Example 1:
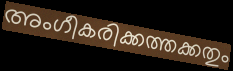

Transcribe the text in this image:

അംഗീകരിക്കത്തക്കതും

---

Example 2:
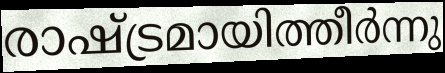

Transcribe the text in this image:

രാഷ്ട്രമായിത്തീർന്നു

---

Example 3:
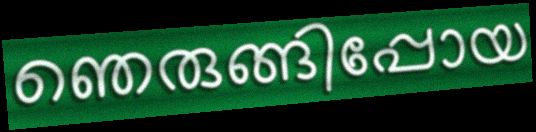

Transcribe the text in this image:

ഞെരുങ്ങിപ്പോയ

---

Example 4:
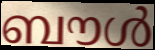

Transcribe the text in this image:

ബൗൾ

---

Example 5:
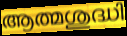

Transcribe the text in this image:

ആത്മശുദ്ധി